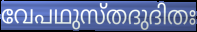
വേപഥുസ്തദുദിതഃ